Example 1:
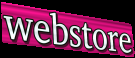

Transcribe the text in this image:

webstore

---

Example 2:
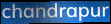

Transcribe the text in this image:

chandrapur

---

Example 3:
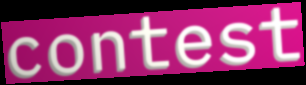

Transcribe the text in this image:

contest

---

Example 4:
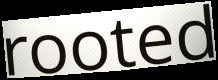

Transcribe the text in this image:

rooted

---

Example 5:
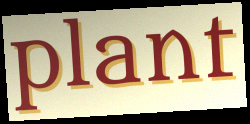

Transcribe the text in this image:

plant